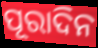
ପୂରାଦିନ